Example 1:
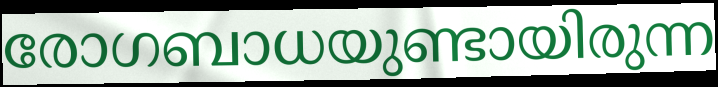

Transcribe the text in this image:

രോഗബാധയുണ്ടായിരുന്ന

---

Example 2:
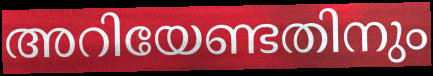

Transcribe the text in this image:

അറിയേണ്ടതിനും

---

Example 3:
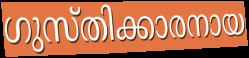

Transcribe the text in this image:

ഗുസ്തിക്കാരനായ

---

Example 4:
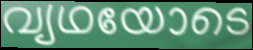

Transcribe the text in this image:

വ്യഥയോടെ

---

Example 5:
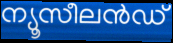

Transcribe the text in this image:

ന്യൂസീലൻഡ്